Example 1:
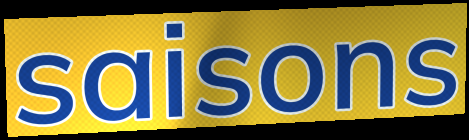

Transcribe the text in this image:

saisons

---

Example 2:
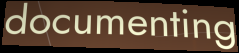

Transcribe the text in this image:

documenting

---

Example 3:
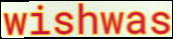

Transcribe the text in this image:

wishwas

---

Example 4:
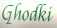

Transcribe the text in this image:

Ghodki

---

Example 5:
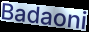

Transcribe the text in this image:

Badaoni